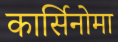
कार्सिनोमा